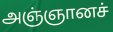
அஞ்ஞானச்